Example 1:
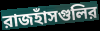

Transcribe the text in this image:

রাজহাঁসগুলির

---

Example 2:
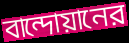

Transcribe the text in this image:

বান্দোয়ানের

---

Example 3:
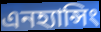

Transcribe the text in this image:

এনহ্যান্সিং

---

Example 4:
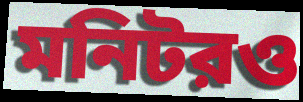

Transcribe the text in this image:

মনিটরও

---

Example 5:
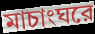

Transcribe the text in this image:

মাচাংঘরে